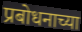
प्रबोधनाच्या